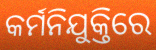
କର୍ମନିଯୁକ୍ତିରେ